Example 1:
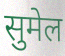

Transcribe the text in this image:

सुमेल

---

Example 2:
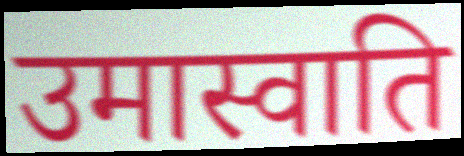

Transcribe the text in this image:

उमास्वाति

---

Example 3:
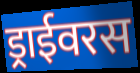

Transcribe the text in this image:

ड्राईवरस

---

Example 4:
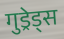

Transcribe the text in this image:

गुड्रेड्स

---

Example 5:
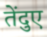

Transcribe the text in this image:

तेंदुए